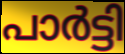
പാർട്ടി